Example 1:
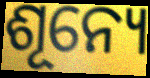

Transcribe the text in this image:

ଶୂନ୍ୟେ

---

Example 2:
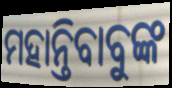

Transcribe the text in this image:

ମହାନ୍ତିବାବୁଙ୍କ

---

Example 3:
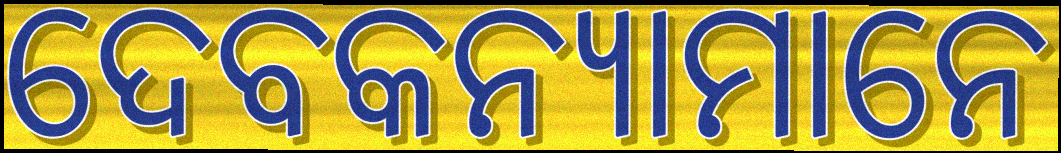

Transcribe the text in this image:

ଦେବକନ୍ୟାମାନେ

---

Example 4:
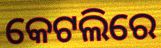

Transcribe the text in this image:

କେଟଲିରେ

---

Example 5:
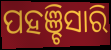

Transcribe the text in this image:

ପହଞ୍ଚିସାରି